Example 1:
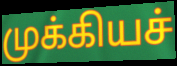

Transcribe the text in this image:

முக்கியச்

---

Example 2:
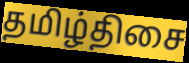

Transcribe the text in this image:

தமிழ்திசை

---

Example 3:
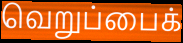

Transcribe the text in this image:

வெறுப்பைக்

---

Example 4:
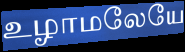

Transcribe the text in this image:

உழாமலேயே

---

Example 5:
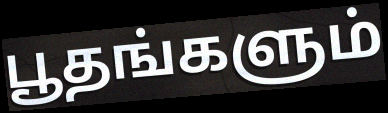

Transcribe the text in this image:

பூதங்களும்